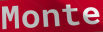
Monte